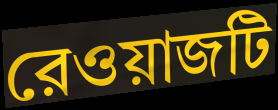
রেওয়াজটি